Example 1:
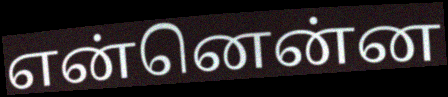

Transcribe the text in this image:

என்னென்ன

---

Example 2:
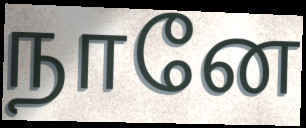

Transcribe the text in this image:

நானே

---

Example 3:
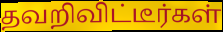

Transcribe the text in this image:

தவறிவிட்டீர்கள்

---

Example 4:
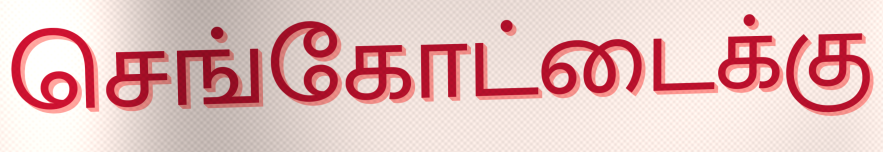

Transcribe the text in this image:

செங்கோட்டைக்கு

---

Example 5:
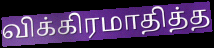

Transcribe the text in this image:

விக்கிரமாதித்த